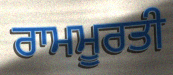
ਰਾਮਮੂਰਤੀ